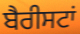
ਬੈਰੀਸਟਾਂ